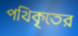
পথিকৃতের